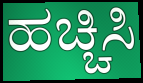
ಹಚ್ಚಿಸಿ